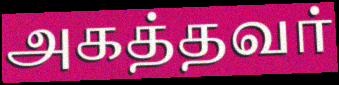
அகத்தவர்